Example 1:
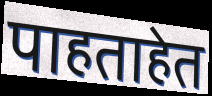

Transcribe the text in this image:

पाहताहेत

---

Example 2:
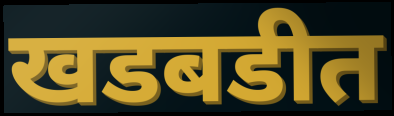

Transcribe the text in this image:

खडबडीत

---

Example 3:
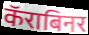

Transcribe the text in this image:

कॅराबिनर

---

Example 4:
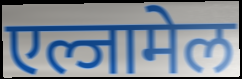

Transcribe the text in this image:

एल्जामेल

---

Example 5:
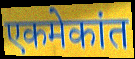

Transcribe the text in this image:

एकमेकांत